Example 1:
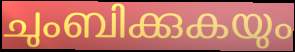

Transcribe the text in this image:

ചുംബിക്കുകയും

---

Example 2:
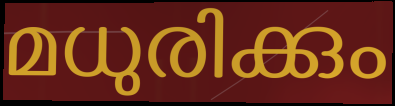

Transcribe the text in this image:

മധുരിക്കും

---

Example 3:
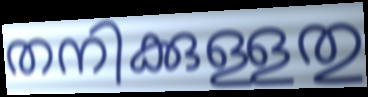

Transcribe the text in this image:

തനിക്കുള്ളതു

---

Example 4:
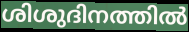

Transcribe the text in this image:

ശിശുദിനത്തിൽ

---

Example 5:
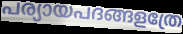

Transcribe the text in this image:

പര്യായപദങ്ങളത്രേ